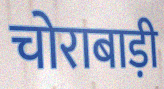
चोराबाड़ी